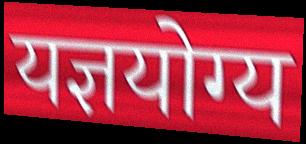
यज्ञयोग्य